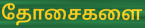
தோசைகளை